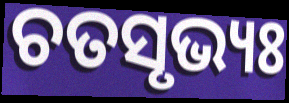
ଚତସୃଭ୍ୟଃ